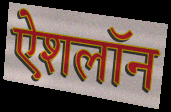
ऐशलॉन